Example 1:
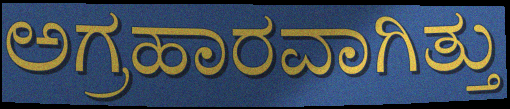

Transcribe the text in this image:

ಅಗ್ರಹಾರವಾಗಿತ್ತು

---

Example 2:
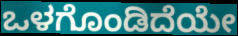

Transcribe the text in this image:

ಒಳಗೊಂಡಿದೆಯೇ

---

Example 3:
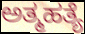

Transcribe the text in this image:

ಅತ್ಮಹತ್ಯೆ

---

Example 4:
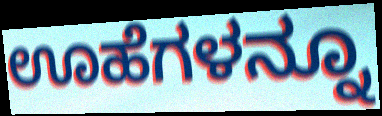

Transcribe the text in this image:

ಊಹೆಗಳನ್ನೂ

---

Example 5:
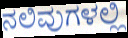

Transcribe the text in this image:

ನಲಿವುಗಳಲ್ಲಿ